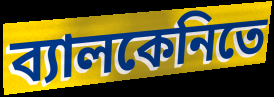
ব্যালকেনিতে